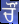
ਚੌਂ